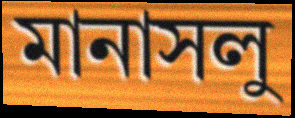
মানাসলু